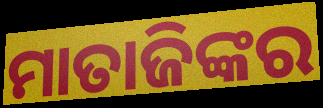
ମାତାଜିଙ୍କର